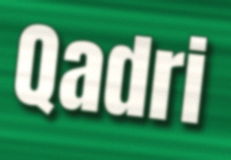
Qadri